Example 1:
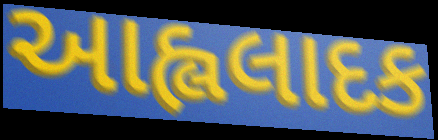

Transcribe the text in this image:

આહ્લલાદક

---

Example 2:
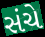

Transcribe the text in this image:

સંચે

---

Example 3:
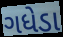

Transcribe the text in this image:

ગધેડા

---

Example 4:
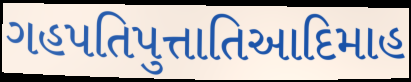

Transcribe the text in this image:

ગહપતિપુત્તાતિઆદિમાહ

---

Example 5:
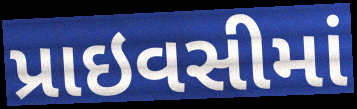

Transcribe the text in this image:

પ્રાઇવસીમાં